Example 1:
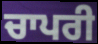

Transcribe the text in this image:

ਚਾਪਰੀ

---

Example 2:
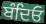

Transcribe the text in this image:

ਬੰਦਿਓ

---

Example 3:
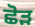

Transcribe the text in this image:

ਛੋੜ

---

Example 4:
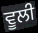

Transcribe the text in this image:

ਵੂਲੀ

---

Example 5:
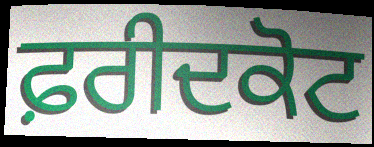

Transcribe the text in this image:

ਫ਼ਰੀਦਕੋਟ